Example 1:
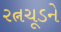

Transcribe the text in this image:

રત્નચૂડને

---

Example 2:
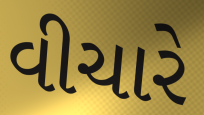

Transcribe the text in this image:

વીચારે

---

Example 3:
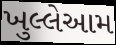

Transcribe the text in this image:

ખુલ્લેઆમ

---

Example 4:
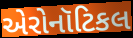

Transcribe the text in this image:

એરોનૉટિકલ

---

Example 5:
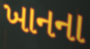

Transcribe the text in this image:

ખાનના